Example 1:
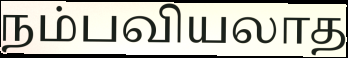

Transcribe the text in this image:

நம்பவியலாத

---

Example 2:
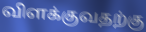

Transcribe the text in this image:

விளக்குவதற்கு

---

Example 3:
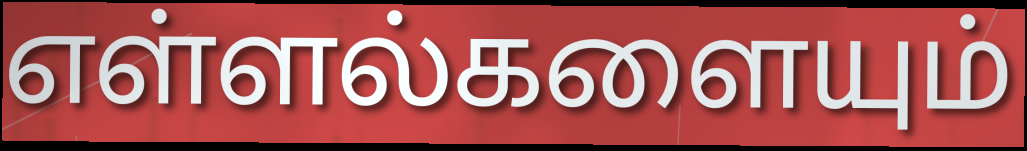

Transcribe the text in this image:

எள்ளல்களையும்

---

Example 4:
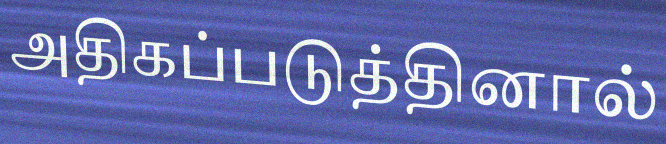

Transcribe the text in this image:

அதிகப்படுத்தினால்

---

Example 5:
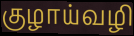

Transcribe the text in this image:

குழாய்வழி